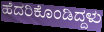
ಹೆದರಿಕೊಂಡಿದ್ದಳು